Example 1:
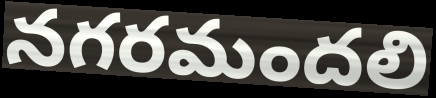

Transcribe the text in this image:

నగరమందలి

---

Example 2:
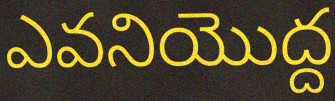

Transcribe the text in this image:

ఎవనియొద్ద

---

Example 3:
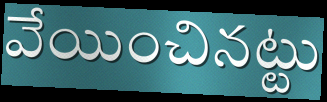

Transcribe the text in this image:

వేయించినట్టు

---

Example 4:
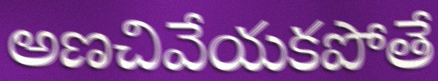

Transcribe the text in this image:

అణచివేయకపోతే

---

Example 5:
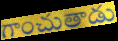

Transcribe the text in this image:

గాంచుతాడు